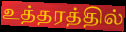
உத்தரத்தில்